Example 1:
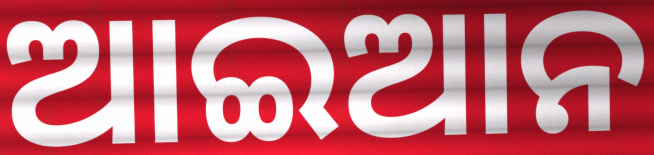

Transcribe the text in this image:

ଆଇଆନ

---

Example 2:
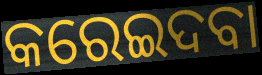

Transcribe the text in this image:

କରେଇଦବା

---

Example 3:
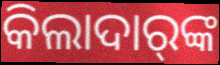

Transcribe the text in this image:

କିଲାଦାର୍‍ଙ୍କ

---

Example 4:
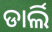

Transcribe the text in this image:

ଡାର୍ଲି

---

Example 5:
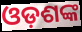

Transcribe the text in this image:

ଓଡ଼ଶଙ୍କ